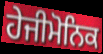
ਹੇਜੀਮੋਨਿਕ